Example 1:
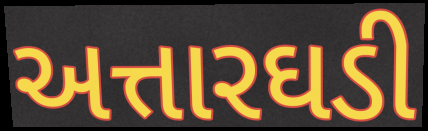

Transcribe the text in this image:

અત્તારઘડી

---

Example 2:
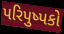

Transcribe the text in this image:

પરિપુષ્પકો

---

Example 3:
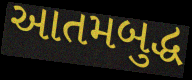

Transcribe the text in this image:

આતમબુદ્ધ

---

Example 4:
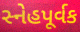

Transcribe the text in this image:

સ્નેહપૂર્વક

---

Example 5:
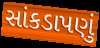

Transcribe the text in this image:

સાંકડાપણું